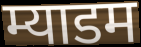
म्याडम